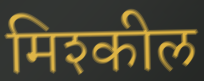
मिश्कील